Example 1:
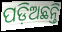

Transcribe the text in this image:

ପଡ଼ିଅଛନ୍ତି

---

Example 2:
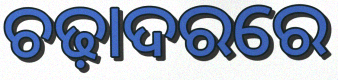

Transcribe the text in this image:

ଚଢ଼ାଦରରେ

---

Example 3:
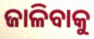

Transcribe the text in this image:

ଜାଳିବାକୁ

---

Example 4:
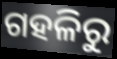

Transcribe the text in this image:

ଗହଳିରୁ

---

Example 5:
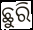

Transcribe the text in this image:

ଛୁରି